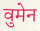
वुमेन